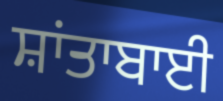
ਸ਼ਾਂਤਾਬਾਈ